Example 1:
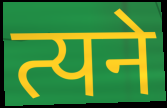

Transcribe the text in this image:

त्यने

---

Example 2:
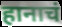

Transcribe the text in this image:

हानाचं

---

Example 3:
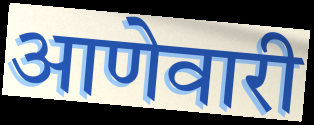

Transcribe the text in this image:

आणेवारी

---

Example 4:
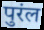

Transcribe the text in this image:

पुरंल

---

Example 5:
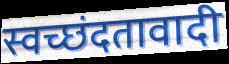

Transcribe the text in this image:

स्वच्छंदतावादी